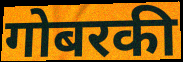
गोबरकी